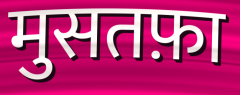
मुसतफ़ा